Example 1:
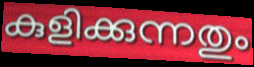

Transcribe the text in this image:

കുളിക്കുന്നതും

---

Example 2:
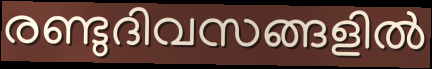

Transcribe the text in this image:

രണ്ടുദിവസങ്ങളിൽ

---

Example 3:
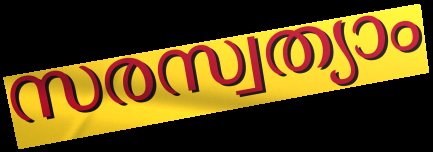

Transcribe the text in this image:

സരസ്വത്യാം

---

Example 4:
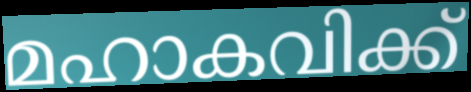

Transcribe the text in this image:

മഹാകവിക്ക്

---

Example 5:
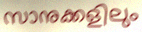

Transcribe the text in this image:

സാനുക്കളിലും